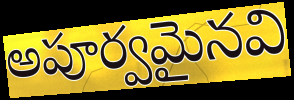
అపూర్వమైనవి